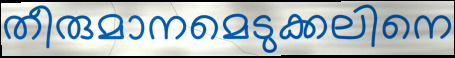
തീരുമാനമെടുക്കലിനെ